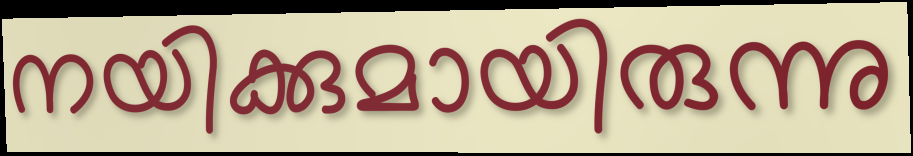
നയിക്കുമായിരുന്നു